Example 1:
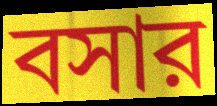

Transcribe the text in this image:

বসার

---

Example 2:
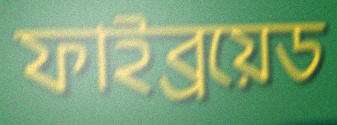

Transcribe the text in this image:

ফাইব্রয়েড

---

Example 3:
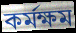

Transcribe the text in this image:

কর্মক্ষম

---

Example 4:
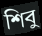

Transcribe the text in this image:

শিবু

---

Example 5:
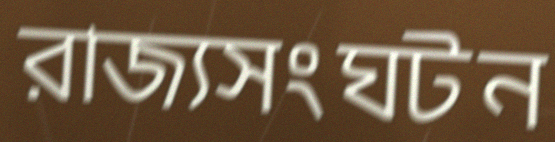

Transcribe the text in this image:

রাজ্যসংঘটন